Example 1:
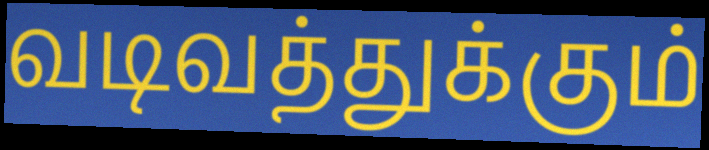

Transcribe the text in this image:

வடிவத்துக்கும்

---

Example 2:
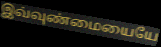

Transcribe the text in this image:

இவ்வுண்மையையே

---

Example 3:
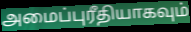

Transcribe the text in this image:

அமைப்புரீதியாகவும்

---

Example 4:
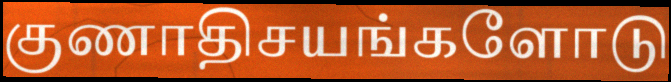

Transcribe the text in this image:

குணாதிசயங்களோடு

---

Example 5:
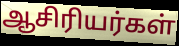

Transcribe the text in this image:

ஆசிரியர்கள்